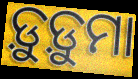
ଡ଼ୁଡ଼ୁମା